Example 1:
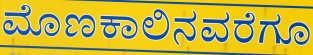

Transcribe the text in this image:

ಮೊಣಕಾಲಿನವರೆಗೂ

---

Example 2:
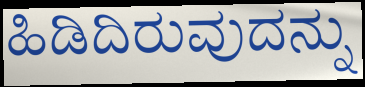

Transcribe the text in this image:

ಹಿಡಿದಿರುವುದನ್ನು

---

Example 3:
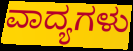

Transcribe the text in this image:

ವಾದ್ಯಗಳು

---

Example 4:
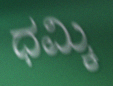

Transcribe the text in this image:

ಧಮ್ಕಿ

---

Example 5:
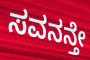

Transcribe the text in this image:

ಸವನನ್ತೇ